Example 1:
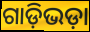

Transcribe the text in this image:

ଗାଡ଼ିଭଡ଼ା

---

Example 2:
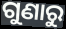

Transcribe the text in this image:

ଗୁଣାରୁ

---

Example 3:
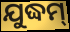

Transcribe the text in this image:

ଯୁଦ୍ଧମ୍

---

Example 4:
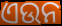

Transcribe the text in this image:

ଏଉନ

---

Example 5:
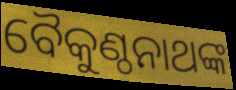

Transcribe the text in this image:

ବୈକୁଣ୍ଠନାଥଙ୍କ